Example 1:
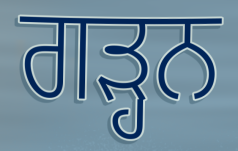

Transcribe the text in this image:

ਗੜ੍ਹਨ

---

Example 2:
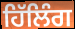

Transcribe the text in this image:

ਹਿੱਲਿੰਗ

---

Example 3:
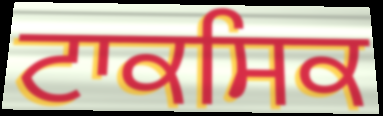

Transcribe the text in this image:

ਟਾਕਸਿਕ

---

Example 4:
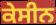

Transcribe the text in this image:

ਕੇਸੀਨ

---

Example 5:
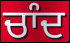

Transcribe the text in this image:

ਚਾੰਦ